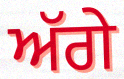
ਅੱਗੇ